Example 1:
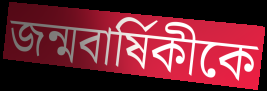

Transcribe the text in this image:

জন্মবার্ষিকীকে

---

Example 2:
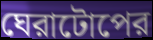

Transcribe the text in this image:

ঘেরাটোপের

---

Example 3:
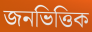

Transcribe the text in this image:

জনভিত্তিক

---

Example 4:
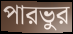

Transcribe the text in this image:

পারভুর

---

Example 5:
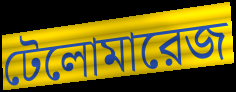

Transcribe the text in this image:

টেলোমারেজ